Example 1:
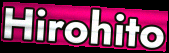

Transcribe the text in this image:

Hirohito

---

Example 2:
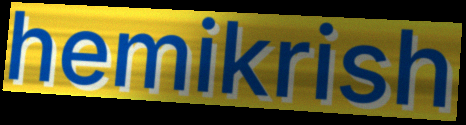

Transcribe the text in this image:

hemikrish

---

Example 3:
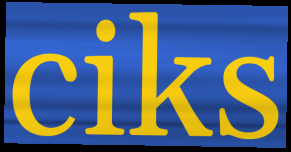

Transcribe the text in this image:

ciks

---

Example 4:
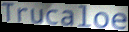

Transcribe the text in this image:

Trucaloe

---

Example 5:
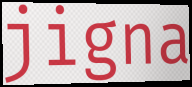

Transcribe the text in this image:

jigna